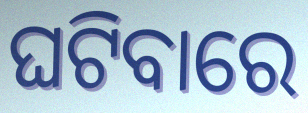
ଘଟିବାରେ